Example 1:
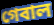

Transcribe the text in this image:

গেবাল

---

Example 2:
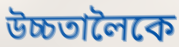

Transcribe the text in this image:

উচ্চতালৈকে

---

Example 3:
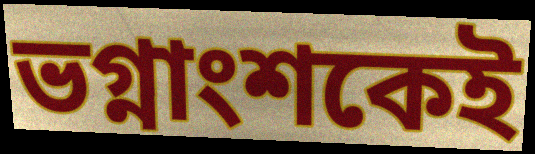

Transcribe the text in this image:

ভগ্নাংশকেই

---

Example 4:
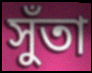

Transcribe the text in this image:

সুঁতা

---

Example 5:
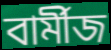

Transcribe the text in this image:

বাৰ্মীজ